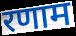
रणाम